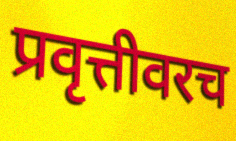
प्रवृत्तीवरच